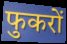
फुकरों